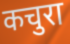
कचुरा